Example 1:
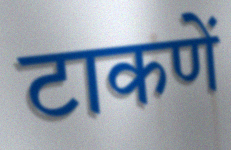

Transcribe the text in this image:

टाकणें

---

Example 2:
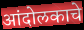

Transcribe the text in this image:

आंदोलकाचे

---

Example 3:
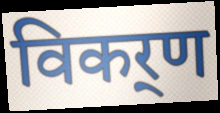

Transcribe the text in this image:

विकर्ण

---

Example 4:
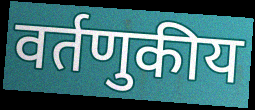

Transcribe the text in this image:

वर्तणुकीय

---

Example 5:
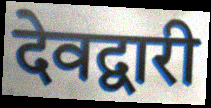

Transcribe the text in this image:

देवद्वारी